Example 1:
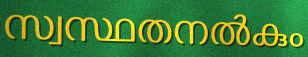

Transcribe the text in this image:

സ്വസ്ഥതനൽകും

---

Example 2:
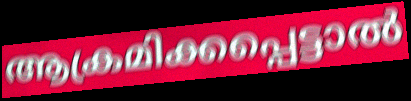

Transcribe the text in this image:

ആക്രമിക്കപ്പെട്ടാൽ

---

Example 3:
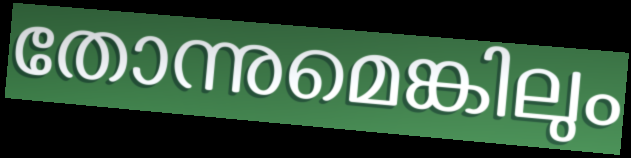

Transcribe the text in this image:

തോന്നുമെങ്കിലും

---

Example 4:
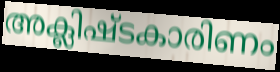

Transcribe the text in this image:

അക്ലിഷ്ടകാരിണം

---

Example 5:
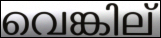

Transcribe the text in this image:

വെങ്കില്